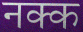
नक्क